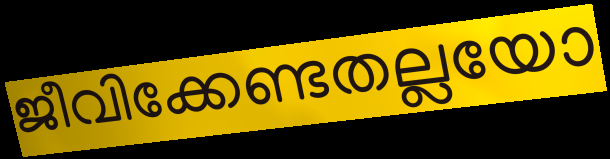
ജീവിക്കേണ്ടതല്ലയോ